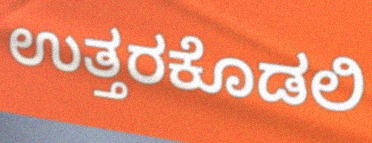
ಉತ್ತರಕೊಡಲಿ